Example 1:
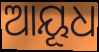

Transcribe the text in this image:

ଆୟୂଧ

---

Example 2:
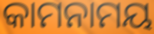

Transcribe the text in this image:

କାମନାମୟ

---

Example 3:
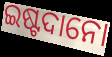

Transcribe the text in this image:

ଇଷ୍ଟଦାନୋ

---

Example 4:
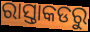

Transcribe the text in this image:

ରାସ୍ତାକଡରୁ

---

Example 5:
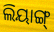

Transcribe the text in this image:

ଲିୟାଙ୍ଗ୍